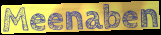
Meenaben